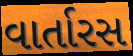
વાર્તારસ